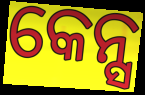
କେନ୍ସ